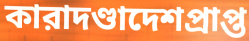
কারাদণ্ডাদেশপ্রাপ্ত